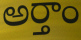
అర్తాం